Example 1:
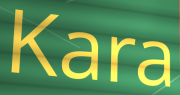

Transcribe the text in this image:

Kara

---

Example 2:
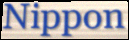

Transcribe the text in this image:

Nippon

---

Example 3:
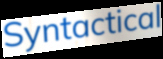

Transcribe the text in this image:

Syntactical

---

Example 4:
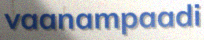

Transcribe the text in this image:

vaanampaadi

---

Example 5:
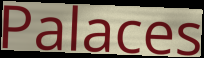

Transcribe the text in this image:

Palaces